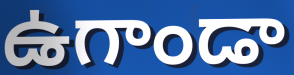
ఉగాండా